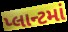
પ્લાન્ટમાં